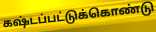
கஷ்டப்பட்டுக்கொண்டு